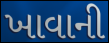
ખાવાની